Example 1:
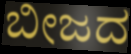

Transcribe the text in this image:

ಬೀಜದ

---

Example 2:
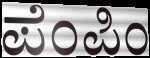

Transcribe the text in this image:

ಪೆಂಪಿಂ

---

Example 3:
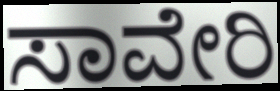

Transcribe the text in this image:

ಸಾವೇರಿ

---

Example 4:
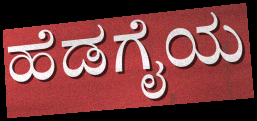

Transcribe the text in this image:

ಹೆಡಗೈಯ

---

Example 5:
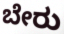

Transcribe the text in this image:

ಬೇರು